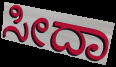
ಸೀದಾ